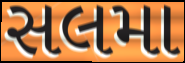
સલમા